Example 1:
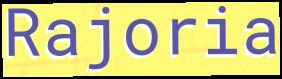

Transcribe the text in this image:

Rajoria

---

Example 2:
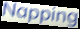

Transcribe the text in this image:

Napping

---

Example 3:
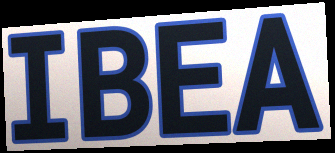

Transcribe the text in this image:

IBEA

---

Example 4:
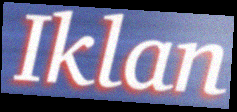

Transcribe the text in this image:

Iklan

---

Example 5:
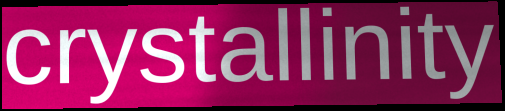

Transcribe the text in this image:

crystallinity